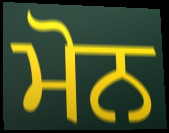
ਮੋਨ